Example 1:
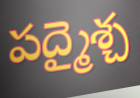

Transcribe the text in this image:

పద్మైశ్చ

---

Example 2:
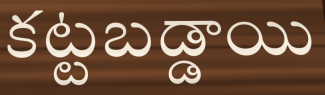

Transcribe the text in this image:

కట్టబడ్డాయి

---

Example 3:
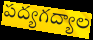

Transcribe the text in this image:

పద్యగద్యాల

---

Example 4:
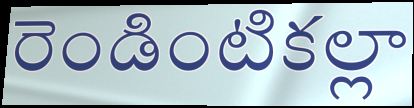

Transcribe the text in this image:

రెండింటికల్లా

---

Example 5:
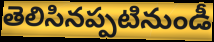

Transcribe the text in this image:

తెలిసినప్పటినుండీ